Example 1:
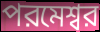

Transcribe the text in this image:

পরমেশ্বর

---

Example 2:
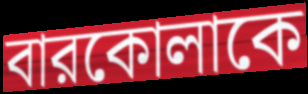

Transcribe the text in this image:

বারকোলাকে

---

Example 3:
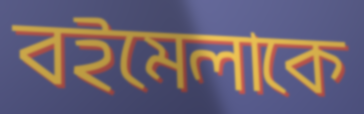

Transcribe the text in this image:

বইমেলাকে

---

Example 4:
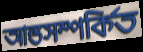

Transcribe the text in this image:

আন্তসম্পর্কিত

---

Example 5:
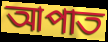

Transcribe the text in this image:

আপাত